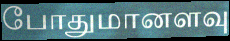
போதுமானளவு